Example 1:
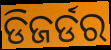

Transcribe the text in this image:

ଡିଜର୍ଡର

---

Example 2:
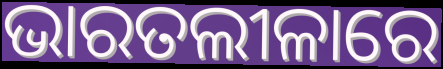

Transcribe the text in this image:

ଭାରତଲୀଳାରେ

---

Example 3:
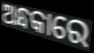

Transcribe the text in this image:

ଅନ୍ଧକାରେ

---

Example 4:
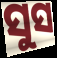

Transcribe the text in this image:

ସୁସ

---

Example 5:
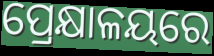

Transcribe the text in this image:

ପ୍ରେକ୍ଷାଳୟରେ